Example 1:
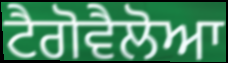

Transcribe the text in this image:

ਟੈਗੋਵੈਲੋਆ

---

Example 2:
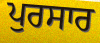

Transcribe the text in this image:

ਪੁਰਸਾਰ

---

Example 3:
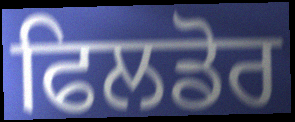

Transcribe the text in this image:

ਫਿਲਡੋਰ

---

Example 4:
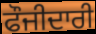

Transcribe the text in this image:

ਫੌਜੀਦਾਰੀ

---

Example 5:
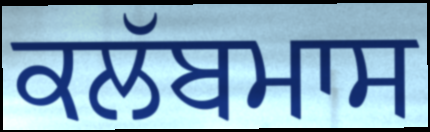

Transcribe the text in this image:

ਕਲੱਬਮਾਸ